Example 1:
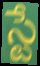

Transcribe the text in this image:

స్టే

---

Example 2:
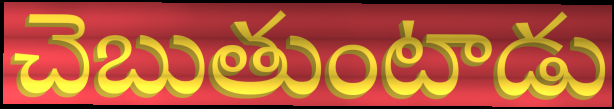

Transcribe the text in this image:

చెబుతుంటాడు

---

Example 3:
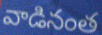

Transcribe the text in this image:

వాడినంత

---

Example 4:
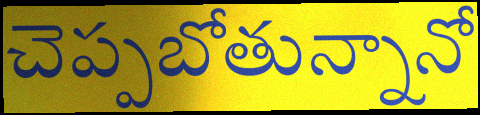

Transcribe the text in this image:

చెప్పబోతున్నానో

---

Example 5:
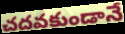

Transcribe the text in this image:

చదవకుండానే